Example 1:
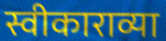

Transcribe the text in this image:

स्वीकाराव्या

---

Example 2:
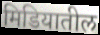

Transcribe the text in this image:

मिडियातील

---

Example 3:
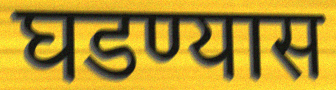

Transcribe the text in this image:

घडण्यास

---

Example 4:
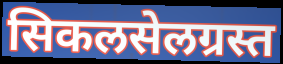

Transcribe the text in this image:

सिकलसेलग्रस्त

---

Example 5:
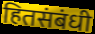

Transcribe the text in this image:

हितसंबंधी